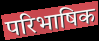
परिभाषिक